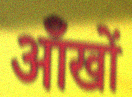
ऑँखों